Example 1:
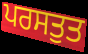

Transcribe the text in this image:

ਪਰਸਤੁਤ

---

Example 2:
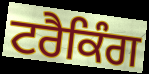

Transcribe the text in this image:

ਟਰੈਕਿੰਗ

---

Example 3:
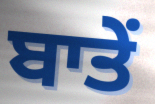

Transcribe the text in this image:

ਬਾਤੇਂ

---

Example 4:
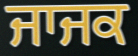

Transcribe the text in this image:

ਜਾਜਕ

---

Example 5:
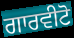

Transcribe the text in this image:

ਗਾਰਵੀਟੋ